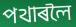
পথাৰলৈ